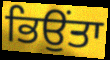
ਭਿਉਂਤਾ